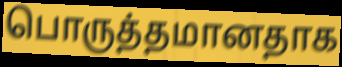
பொருத்தமானதாக